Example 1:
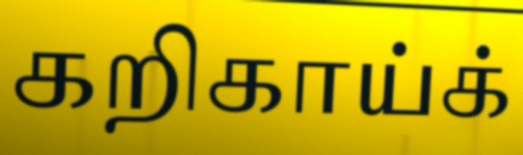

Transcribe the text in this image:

கறிகாய்க்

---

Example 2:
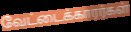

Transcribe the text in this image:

வேட்டைக்காரர்கள்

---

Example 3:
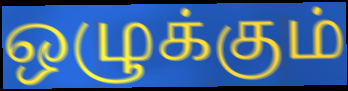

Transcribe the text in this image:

ஒழுக்கும்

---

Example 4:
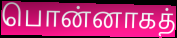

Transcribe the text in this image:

பொன்னாகத்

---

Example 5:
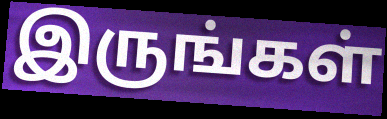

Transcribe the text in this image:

இருங்கள்